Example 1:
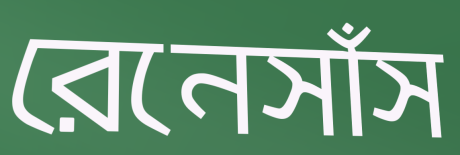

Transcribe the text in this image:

রেনেসাঁস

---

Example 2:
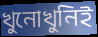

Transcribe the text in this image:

খুনোখুনিই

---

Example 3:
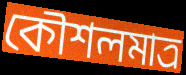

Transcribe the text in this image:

কৌশলমাত্র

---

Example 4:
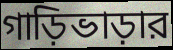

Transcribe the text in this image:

গাড়িভাড়ার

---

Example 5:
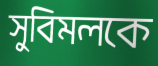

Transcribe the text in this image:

সুবিমলকে